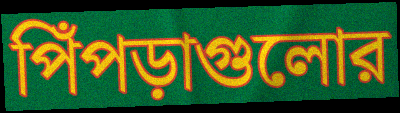
পিঁপড়াগুলোর